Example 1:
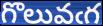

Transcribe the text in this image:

గొలువఁగ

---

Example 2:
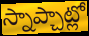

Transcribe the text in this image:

స్నాప్చాట్లో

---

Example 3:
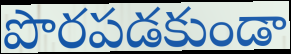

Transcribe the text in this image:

పొరపడకుండా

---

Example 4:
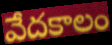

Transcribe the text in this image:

వేదకాలం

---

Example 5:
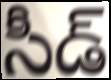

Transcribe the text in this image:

సీడ్